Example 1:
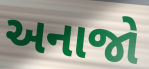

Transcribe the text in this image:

અનાજો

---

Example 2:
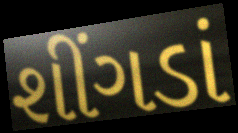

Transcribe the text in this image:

શીંગડાં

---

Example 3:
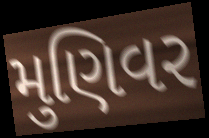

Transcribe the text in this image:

મુણિવર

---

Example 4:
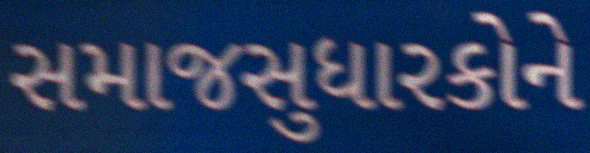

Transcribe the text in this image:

સમાજસુધારકોને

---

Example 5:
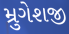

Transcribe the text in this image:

મ્રુગેશજી